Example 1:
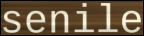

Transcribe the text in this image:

senile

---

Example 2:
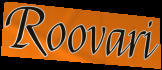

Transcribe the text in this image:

Roovari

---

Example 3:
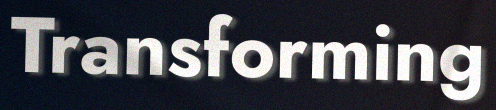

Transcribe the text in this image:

Transforming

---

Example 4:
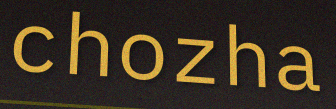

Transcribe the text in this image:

chozha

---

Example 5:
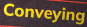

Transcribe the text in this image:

Conveying